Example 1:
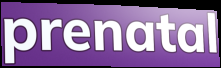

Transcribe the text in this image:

prenatal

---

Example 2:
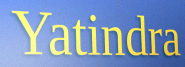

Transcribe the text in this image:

Yatindra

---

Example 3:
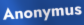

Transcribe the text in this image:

Anonymus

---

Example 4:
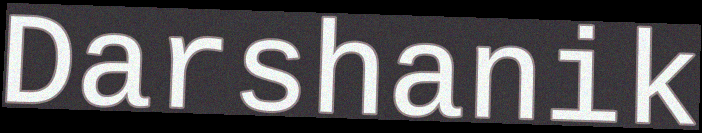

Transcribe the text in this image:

Darshanik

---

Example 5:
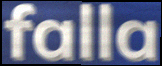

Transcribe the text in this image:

falla